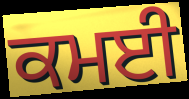
ਕਮਈ